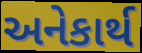
અનેકાર્થ